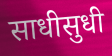
साधीसुधी